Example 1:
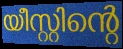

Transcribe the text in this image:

യീസ്റ്റിന്റെ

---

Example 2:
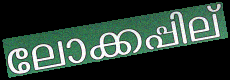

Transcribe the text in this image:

ലോക്കപ്പില്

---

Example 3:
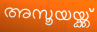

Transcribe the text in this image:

അസൂയയ്ക്ക്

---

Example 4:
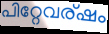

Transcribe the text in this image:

പിറ്റേവര്ഷം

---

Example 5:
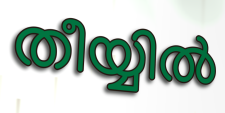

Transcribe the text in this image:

തീയ്യിൽ